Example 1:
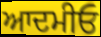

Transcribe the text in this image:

ਆਦਮੀਓ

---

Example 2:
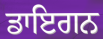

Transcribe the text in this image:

ਡਾਇਗਨ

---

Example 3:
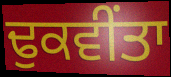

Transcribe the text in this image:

ਢੁਕਵੀਂਤਾ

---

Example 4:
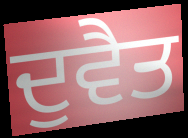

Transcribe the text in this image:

ਦੁਵੈਤ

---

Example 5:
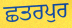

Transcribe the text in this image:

ਛਤਰਪੁਰ